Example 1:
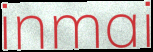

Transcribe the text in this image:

inmai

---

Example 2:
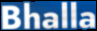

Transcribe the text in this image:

Bhalla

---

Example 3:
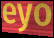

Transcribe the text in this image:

eyo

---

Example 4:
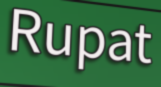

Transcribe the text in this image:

Rupat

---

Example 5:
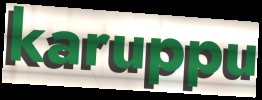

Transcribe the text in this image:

karuppu